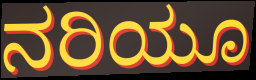
ನರಿಯೂ